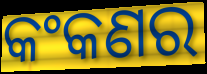
କଂକଣର